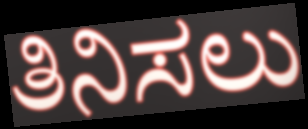
ತಿನಿಸಲು